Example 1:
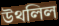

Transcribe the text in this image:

উথলিল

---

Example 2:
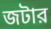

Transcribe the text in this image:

জটার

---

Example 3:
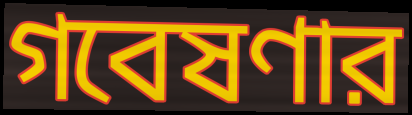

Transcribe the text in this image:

গবেষণার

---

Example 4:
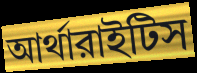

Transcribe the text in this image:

আর্থারাইটিস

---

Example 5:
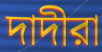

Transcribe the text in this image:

দাদীরা